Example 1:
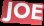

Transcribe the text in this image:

JOE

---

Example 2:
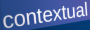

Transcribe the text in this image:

contextual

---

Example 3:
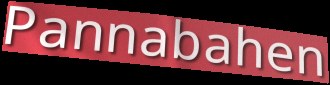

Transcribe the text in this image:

Pannabahen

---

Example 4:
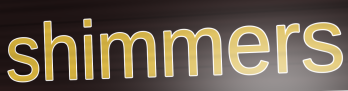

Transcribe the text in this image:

shimmers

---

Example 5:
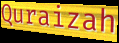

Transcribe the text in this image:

Quraizah